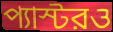
প্যাস্টরও